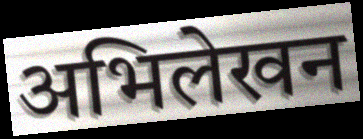
अभिलेखन